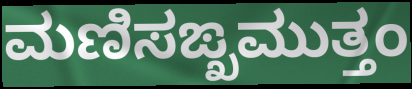
ಮಣಿಸಙ್ಖಮುತ್ತಂ